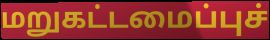
மறுகட்டமைப்புச்